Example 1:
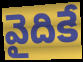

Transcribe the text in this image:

వైదికే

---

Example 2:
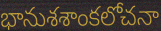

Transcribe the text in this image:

భానుశశాంకలోచనా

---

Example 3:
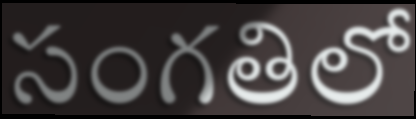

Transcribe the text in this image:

సంగతిలో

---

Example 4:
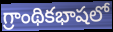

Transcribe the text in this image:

గ్రాంథికభాషలో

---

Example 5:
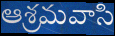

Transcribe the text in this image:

ఆశ్రమవాసి